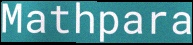
Mathpara